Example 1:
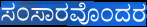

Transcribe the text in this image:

ಸಂಸಾರವೊಂದರ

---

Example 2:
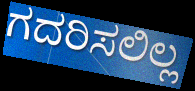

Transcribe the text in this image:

ಗದರಿಸಲಿಲ್ಲ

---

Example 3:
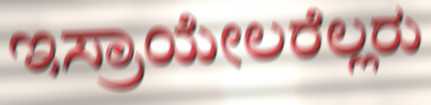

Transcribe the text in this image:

ಇಸ್ರಾಯೇಲರೆಲ್ಲರು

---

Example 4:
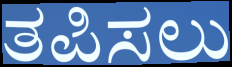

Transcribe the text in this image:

ತಪಿಸಲು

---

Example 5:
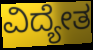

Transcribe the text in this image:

ವಿದ್ಯೇತ